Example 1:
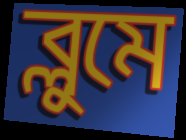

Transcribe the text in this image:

ব্লুমে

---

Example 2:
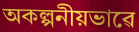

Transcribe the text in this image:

অকল্পনীয়ভাৱে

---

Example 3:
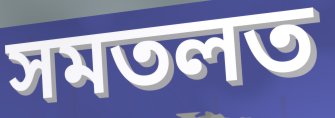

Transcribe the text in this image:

সমতলত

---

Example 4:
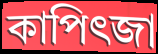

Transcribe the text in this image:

কাপিৎজা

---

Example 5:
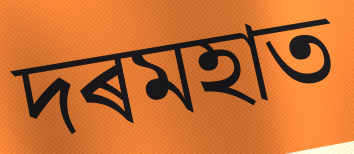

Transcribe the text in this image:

দৰমহাত